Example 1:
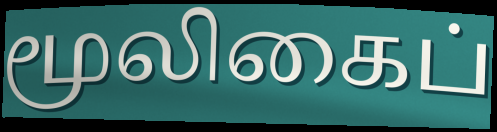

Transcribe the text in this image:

மூலிகைப்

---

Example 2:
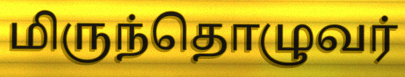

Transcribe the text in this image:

மிருந்தொழுவர்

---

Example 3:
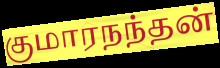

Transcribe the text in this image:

குமாரநந்தன்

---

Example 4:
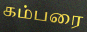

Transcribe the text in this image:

கம்பரை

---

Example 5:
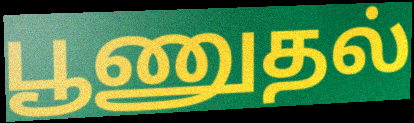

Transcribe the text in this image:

பூணுதல்